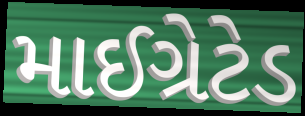
માઈગ્રેટેડ